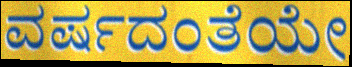
ವರ್ಷದಂತೆಯೇ